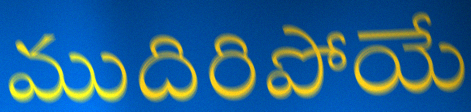
ముదిరిపోయే